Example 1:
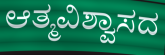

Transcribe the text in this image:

ಆತ್ಮವಿಶ್ವಾಸದ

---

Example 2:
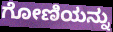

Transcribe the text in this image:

ಗೋಣಿಯನ್ನು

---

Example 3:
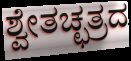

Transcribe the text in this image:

ಶ್ವೇತಚ್ಛತ್ರದ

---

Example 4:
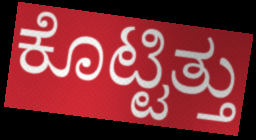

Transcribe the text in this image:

ಕೊಟ್ಟಿತ್ತು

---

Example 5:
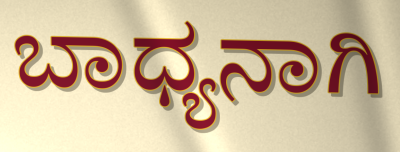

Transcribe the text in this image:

ಬಾಧ್ಯನಾಗಿ